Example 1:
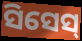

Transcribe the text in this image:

ସିସେସ୍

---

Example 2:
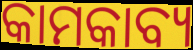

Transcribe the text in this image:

କାମକାବ୍ୟ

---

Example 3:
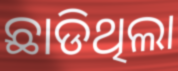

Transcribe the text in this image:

ଛାଡିଥିଲା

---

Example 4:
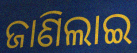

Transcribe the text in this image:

ଜାଣିଲାଇ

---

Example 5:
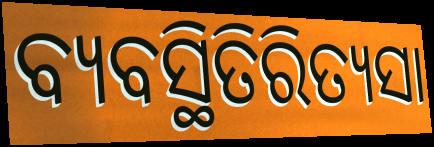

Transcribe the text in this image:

ବ୍ୟବସ୍ଥିତିରିତ୍ୟସା